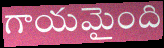
గాయమైంది